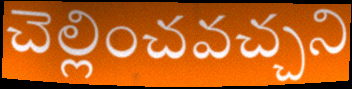
చెల్లించవచ్చని